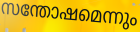
സന്തോഷമെന്നും